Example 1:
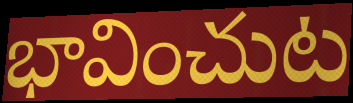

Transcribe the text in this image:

భావించుట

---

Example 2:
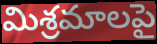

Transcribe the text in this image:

మిశ్రమాలపై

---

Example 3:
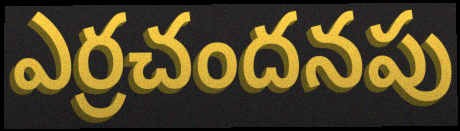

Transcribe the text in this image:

ఎర్రచందనపు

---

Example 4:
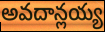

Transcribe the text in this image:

అవదాన్లయ్య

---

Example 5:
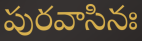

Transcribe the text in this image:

పురవాసినః